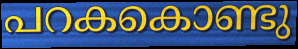
പറകകൊണ്ടു